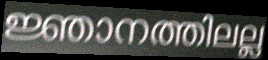
ജ്ഞാനത്തിലല്ല